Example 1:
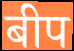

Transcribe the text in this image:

बीप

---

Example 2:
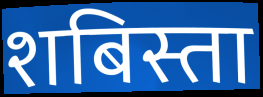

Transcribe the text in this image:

शबिस्ता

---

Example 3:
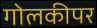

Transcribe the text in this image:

गोलकीपर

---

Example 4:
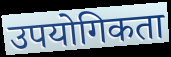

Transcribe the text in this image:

उपयोगिकता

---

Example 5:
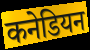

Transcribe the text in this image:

कनेडियन